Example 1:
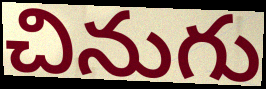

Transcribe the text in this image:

చినుగు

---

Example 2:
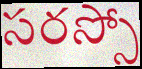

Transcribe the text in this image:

సరస్సో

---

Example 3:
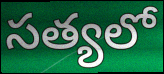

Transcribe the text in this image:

సత్యలో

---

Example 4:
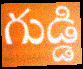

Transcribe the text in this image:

గుడ్డి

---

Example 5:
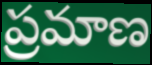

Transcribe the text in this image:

ప్రమాణ